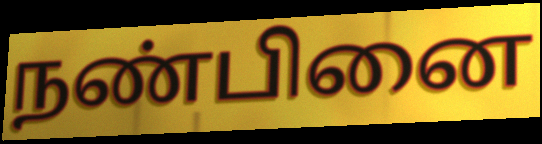
நண்பினை